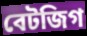
বেটজিগ